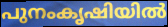
പുനംകൃഷിയിൽ